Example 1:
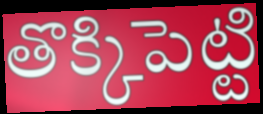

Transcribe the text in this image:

తొక్కిపెట్టి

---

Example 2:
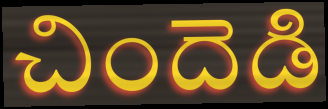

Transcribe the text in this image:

చిందెడి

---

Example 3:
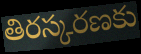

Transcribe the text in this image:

తిరస్కరణకు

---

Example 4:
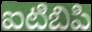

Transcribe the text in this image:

ఐటిబిపి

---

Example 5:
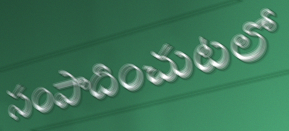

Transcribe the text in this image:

సంపాదించుటలో